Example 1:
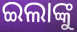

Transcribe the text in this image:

ଇଲାଙ୍କୁ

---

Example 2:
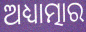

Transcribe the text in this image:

ଅଧ୍ୟାତ୍ମାର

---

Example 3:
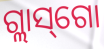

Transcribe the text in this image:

ଗ୍ଲାସ୍‌ଗୋ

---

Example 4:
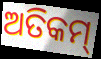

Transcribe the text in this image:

ଅତିକମ୍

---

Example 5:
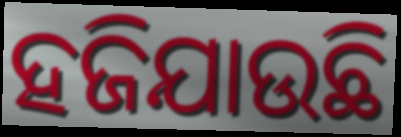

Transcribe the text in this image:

ହଜିଯାଉଛି